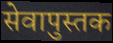
सेवापुस्तक